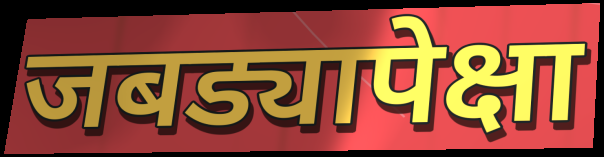
जबड्यापेक्षा